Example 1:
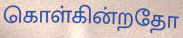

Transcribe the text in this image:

கொள்கின்றதோ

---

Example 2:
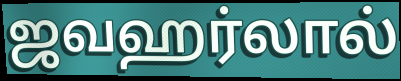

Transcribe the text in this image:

ஜவஹர்லால்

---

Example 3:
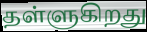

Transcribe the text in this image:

தள்ளுகிறது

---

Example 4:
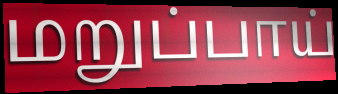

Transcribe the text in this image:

மறுப்பாய்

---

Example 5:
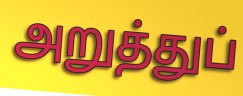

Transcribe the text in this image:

அறுத்துப்